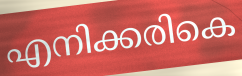
എനിക്കരികെ